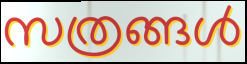
സത്രങ്ങൾ